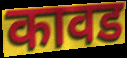
कावड